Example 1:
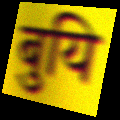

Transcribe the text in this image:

बुयि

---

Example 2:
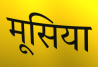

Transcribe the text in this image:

मूसिया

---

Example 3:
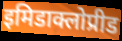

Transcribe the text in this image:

इमिडाक्लोप्रीड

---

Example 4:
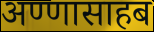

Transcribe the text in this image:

अण्णासाहब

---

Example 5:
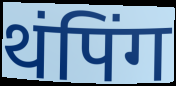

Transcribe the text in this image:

थंपिंग